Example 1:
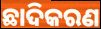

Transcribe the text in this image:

ଛାଦିକରଣ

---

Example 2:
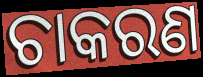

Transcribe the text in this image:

ଚାକରଣ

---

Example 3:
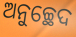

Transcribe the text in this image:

ଅନୁଚ୍ଛେଦ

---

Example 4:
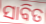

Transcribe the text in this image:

ସାବିତ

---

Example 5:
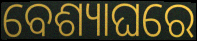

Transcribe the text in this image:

ବେଶ୍ୟାଘରେ